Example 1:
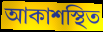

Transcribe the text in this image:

আকাশস্থিত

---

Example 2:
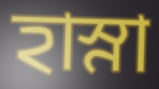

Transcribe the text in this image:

হাস্না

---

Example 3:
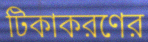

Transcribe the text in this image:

টিকাকরণের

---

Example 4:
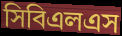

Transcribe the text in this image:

সিবিএলএস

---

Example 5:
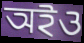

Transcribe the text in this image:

অইও